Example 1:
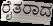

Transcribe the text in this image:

ರೈತರಾದ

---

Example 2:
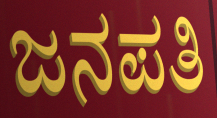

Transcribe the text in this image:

ಜನಪತಿ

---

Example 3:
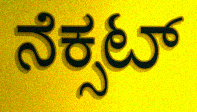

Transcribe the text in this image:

ನೆಕ್ಸಟ್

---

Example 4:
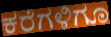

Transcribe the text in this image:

ಕರೆಗಳಿಗೂ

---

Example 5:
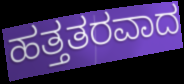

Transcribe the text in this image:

ಹತ್ತತರವಾದ